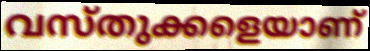
വസ്തുക്കളെയാണ്